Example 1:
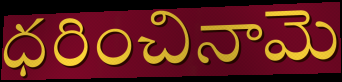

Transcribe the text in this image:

ధరించినామె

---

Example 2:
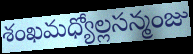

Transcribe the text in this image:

శంఖమధ్యోల్లసన్మంజు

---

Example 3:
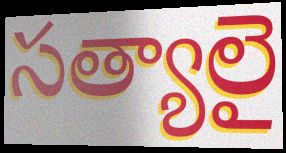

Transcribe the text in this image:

సత్యాలై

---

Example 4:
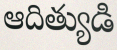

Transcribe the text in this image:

ఆదిత్యుడి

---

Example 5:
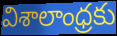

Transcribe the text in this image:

విశాలాంధ్రకు